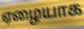
ஏழையாக